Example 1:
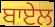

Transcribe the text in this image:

ਬਾਏਲ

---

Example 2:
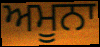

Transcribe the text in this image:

ਅਮੂਨਾ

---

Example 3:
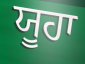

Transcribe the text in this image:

ਯੂਹਾ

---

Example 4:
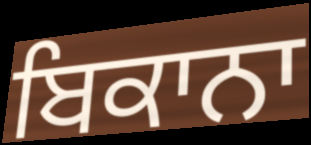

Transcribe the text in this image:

ਬਿਕਾਨਾ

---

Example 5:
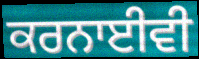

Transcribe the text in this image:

ਕਰਨਾਈਵੀ